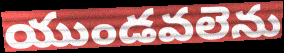
యుండవలెను